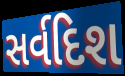
સર્વદિશ